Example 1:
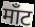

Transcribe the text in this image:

माँट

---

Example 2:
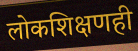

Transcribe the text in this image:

लोकशिक्षणही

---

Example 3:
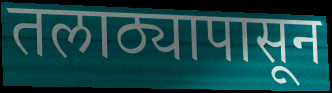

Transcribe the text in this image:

तलाठ्यापासून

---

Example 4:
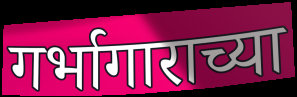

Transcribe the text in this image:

गर्भागाराच्या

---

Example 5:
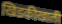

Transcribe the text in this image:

खिडकीखाली